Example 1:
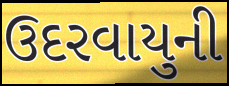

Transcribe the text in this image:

ઉદરવાયુની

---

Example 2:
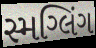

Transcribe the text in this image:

સ્મગ્લિંગ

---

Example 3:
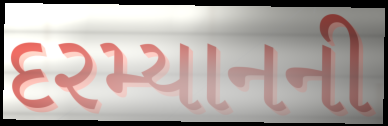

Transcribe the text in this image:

દરમ્યાનની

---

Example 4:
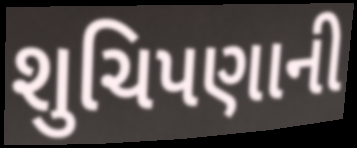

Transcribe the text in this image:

શુચિપણાની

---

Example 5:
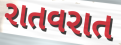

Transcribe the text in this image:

રાતવરાત